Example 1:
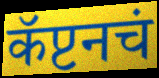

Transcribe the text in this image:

कॅप्टनचं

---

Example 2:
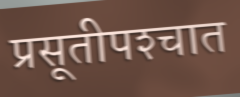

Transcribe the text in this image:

प्रसूतीपश्चात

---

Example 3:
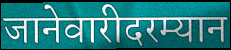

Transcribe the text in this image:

जानेवारीदरम्यान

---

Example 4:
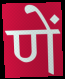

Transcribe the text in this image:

णें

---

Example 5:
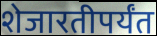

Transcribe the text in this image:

शेजारतीपर्यंत